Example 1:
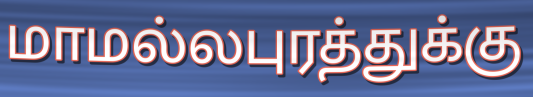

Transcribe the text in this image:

மாமல்லபுரத்துக்கு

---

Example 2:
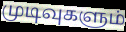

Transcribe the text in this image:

முடிவுகளும்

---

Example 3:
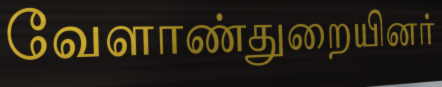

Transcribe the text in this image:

வேளாண்துறையினர்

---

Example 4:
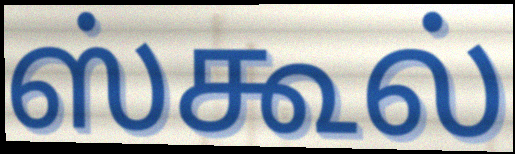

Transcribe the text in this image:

ஸ்கூல்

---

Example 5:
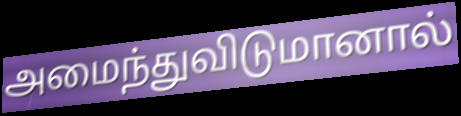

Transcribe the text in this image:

அமைந்துவிடுமானால்